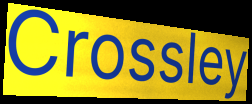
Crossley